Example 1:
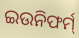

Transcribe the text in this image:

ଇଉନିଫର୍ମ୍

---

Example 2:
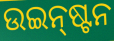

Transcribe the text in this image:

ଉଇନ୍‌ଷ୍ଟନ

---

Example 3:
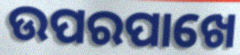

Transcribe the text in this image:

ଉପରପାଖେ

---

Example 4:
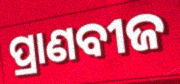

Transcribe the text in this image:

ପ୍ରାଣବୀଜ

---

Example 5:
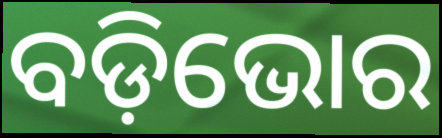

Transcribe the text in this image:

ବଡ଼ିଭୋର